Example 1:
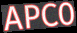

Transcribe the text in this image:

APCO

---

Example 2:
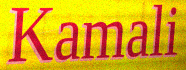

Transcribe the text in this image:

Kamali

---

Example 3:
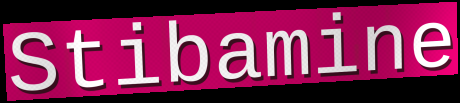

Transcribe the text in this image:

Stibamine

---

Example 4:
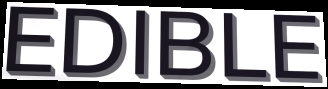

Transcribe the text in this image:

EDIBLE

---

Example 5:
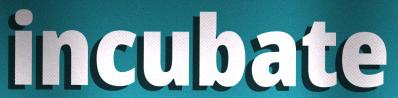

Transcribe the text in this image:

incubate